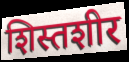
शिस्तशीर